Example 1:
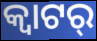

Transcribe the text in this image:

କ୍ୱାଟର୍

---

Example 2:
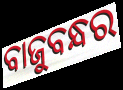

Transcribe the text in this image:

ବାଜୁବନ୍ଧର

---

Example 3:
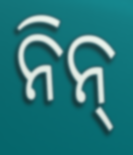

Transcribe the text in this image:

ନିନ୍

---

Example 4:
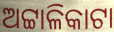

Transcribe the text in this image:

ଅଟ୍ଟାଳିକାଟା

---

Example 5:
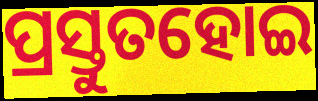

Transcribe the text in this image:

ପ୍ରସ୍ତୁତହୋଇ